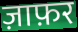
ज़ाफ़र